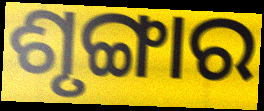
ଶୃଙ୍ଗାର